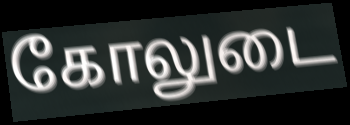
கோலுடை